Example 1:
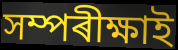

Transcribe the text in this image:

সম্পৰীক্ষাই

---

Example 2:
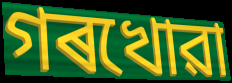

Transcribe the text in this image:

গৰখোৱা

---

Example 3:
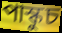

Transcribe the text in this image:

পাস্কুচ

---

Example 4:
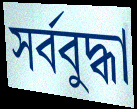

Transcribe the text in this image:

সৰ্ববুদ্ধা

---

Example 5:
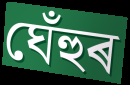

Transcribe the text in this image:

ঘেঁহুৰ